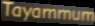
Tayammum